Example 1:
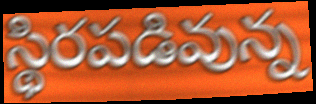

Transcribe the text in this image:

స్థిరపడివున్న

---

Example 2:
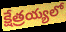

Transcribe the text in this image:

క్షేత్రయ్యలో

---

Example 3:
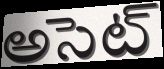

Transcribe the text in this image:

అసెట్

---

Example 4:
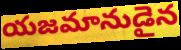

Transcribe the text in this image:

యజమానుడైన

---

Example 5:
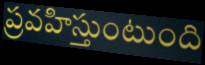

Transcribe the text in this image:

ప్రవహిస్తుంటుంది